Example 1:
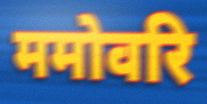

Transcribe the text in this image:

ममोवरि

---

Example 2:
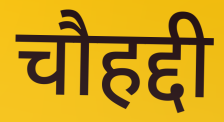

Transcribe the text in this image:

चौहद्दी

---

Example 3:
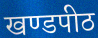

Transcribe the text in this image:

खण्डपीठ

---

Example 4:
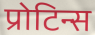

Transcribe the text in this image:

प्रोटिन्स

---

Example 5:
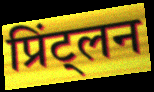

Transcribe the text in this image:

प्रिंट्लन